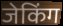
जेकिंग